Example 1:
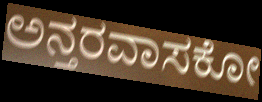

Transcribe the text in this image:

ಅನ್ತರವಾಸಕೋ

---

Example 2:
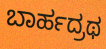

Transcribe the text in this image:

ಬಾರ್ಹದ್ರಥ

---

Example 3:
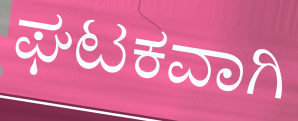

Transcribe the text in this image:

ಘಟಕವಾಗಿ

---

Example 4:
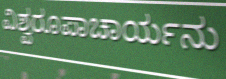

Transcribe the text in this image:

ವಿಶ್ವರೂಪಾಚಾರ್ಯನು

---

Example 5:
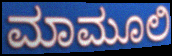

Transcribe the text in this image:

ಮಾಮೂಲಿ